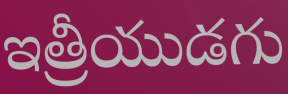
ఇత్రీయుడగు